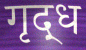
गृद्ध